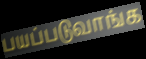
பயப்படுவாங்க